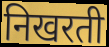
निखरती